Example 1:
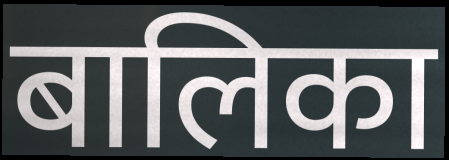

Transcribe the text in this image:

बालिका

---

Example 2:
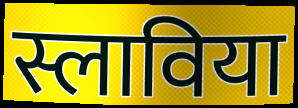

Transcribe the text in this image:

स्लाविया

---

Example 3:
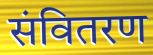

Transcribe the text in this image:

संवितरण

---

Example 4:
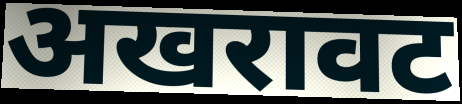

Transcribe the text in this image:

अखरावट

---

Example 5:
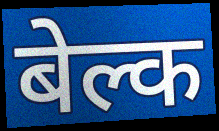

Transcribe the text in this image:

बेल्क